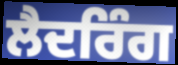
ਲੈਦਰਿੰਗ